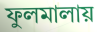
ফুলমালায়